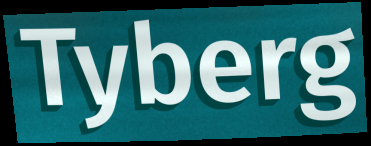
Tyberg